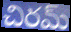
చిరమ్